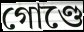
গোণ্ডে